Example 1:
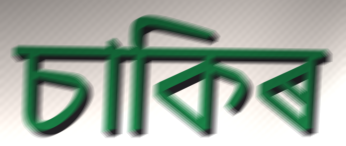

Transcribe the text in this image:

চাকিৰ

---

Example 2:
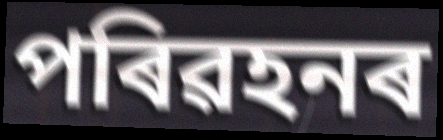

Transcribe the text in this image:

পৰিৱহনৰ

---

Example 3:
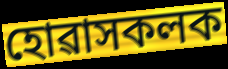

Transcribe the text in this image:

হোৱাসকলক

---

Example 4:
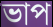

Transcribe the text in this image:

ভাপ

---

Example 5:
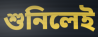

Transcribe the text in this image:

শুনিলেই